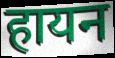
हायन